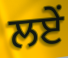
ਲਏਂ